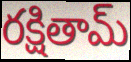
రక్షితామ్